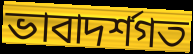
ভাবাদৰ্শগত